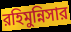
রহিমুন্নিসার